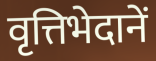
वृत्तिभेदानें